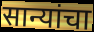
सान्यांचा